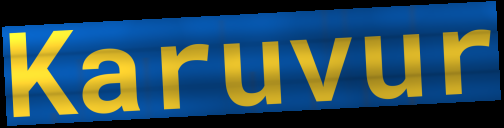
Karuvur